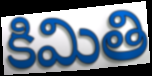
కిమితి